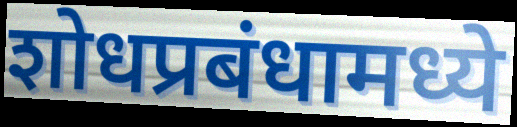
शोधप्रबंधामध्ये